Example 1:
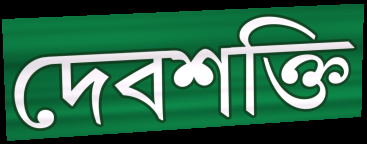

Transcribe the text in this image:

দেবশক্তি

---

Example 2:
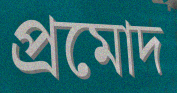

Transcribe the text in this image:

প্রমোদ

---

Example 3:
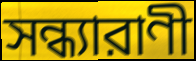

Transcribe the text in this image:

সন্ধ্যারাণী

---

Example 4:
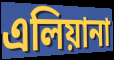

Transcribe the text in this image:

এলিয়ানা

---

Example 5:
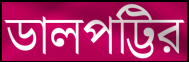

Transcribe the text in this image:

ডালপট্টির